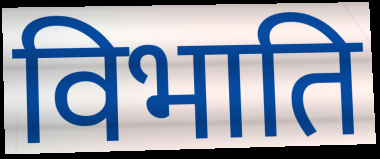
विभाति